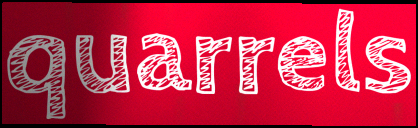
quarrels